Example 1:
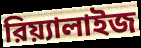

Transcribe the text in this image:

রিয়্যালাইজ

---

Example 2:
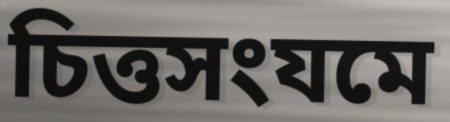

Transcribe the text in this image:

চিত্তসংযমে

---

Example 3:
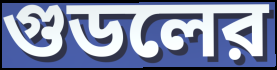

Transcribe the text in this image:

গুডলের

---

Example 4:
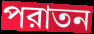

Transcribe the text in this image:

পরাতন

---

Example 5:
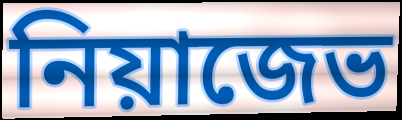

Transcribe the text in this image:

নিয়াজেভ